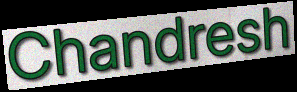
Chandresh